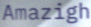
Amazigh